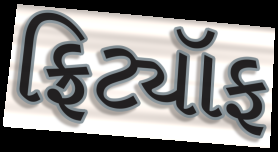
ફ્રિટ્યૉફ